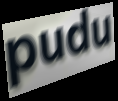
pudu